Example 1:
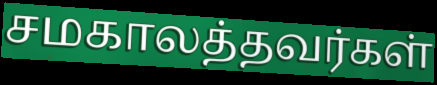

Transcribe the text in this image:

சமகாலத்தவர்கள்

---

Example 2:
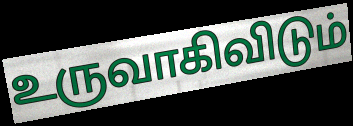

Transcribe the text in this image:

உருவாகிவிடும்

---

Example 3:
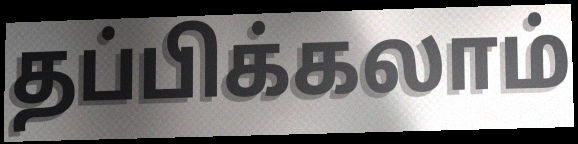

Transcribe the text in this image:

தப்பிக்கலாம்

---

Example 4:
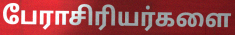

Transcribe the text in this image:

பேராசிரியர்களை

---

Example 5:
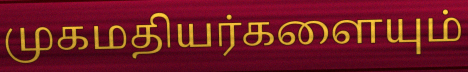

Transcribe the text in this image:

முகமதியர்களையும்